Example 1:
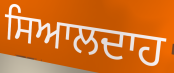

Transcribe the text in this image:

ਸਿਆਲਦਾਹ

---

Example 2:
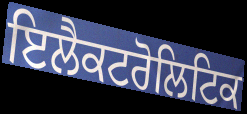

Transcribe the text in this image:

ਇਲੈਕਟਰੋਲਿਟਿਕ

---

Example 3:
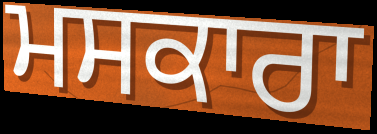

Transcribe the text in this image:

ਮਸਕਾਰਾ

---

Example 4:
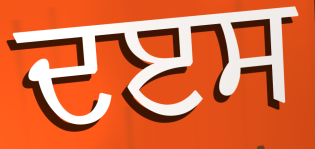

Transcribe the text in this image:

ਦੲਸ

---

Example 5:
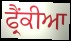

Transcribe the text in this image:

ਫ੍ਰੈਂਕੀਆ